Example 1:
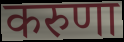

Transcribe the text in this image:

करुणा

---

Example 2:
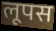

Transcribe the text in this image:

लूपस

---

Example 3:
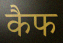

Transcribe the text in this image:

कैफ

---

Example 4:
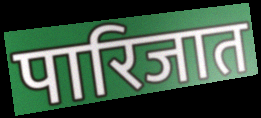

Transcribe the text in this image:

पारिजात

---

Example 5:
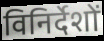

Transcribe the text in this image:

विनिर्देशों